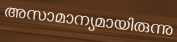
അസാമാന്യമായിരുന്നു